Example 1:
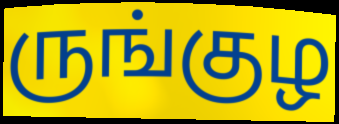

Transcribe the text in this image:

ருங்குழ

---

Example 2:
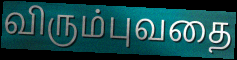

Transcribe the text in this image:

விரும்புவதை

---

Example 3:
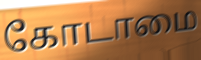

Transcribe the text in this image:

கோடாமை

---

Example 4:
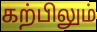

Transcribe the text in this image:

கற்பிலும்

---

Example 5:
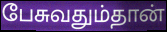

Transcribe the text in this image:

பேசுவதும்தான்